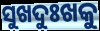
ସୁଖଦୁଃଖକୁ